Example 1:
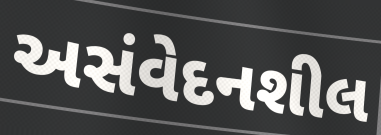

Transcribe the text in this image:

અસંવેદનશીલ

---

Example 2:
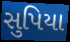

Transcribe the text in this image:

સુપિયા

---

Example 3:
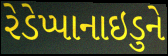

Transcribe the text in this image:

રેડેપ્પાનાઇડુને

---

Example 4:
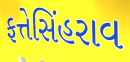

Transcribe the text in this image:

ફત્તેસિંહરાવ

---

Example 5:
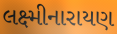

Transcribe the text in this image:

લક્ષ્મીનારાયણ